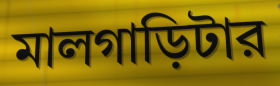
মালগাড়িটার